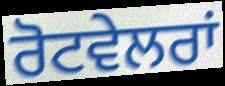
ਰੋਟਵੇਲਰਾਂ